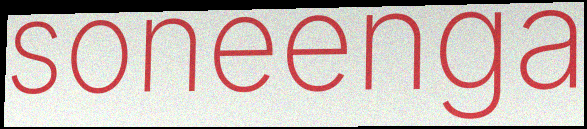
soneenga